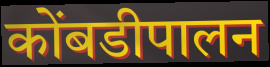
कोंबडीपालन